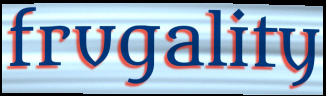
frugality